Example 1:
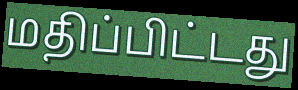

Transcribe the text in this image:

மதிப்பிட்டது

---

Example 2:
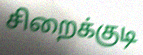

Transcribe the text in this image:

சிறைக்குடி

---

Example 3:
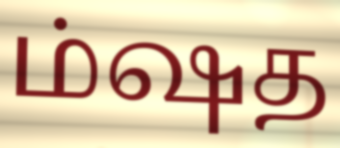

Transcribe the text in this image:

ம்ஷத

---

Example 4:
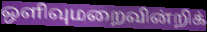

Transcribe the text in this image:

ஒளிவுமறைவின்றிக்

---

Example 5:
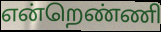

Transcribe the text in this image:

என்றெண்ணி